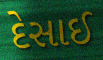
દેસાઈ